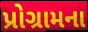
પ્રોગ્રામના